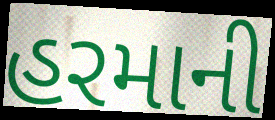
હરમાની